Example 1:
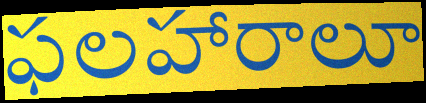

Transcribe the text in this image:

ఫలహారాలూ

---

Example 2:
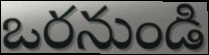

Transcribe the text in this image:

ఒరనుండి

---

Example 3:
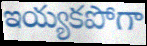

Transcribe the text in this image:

ఇయ్యకపోగా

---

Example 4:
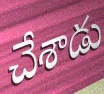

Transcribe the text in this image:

చేశాడు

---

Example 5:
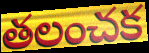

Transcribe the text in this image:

తలంచక